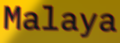
Malaya